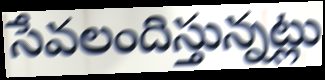
సేవలందిస్తున్నట్లు